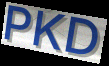
PKD